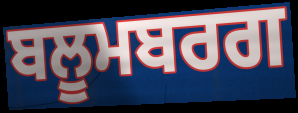
ਬਲੂਮਬਰਗ